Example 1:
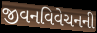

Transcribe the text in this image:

જીવનવિવેચનની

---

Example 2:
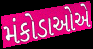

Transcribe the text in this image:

મંકોડાઓએ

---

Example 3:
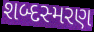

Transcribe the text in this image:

શબ્દસ્મરણ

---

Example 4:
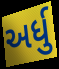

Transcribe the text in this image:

અર્ધુ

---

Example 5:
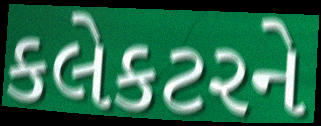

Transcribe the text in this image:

કલેકટરને